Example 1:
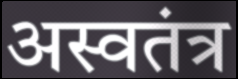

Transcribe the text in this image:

अस्वतंत्र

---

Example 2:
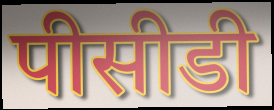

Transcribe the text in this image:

पीसीडी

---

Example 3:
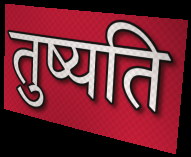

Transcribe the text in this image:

तुष्यति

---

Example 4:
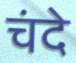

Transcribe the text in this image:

चंदे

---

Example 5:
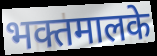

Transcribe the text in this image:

भक्तमालके